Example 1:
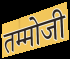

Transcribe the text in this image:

तम्मोजी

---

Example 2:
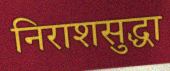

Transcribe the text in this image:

निराशसुद्धा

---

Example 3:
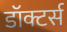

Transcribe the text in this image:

डॉक्टर्स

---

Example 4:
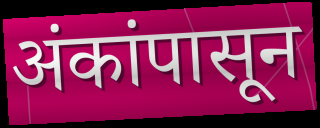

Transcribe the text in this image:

अंकांपासून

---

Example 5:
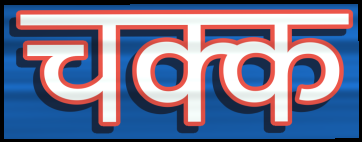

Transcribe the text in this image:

चक्‍क